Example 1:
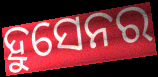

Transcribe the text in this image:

ହୁସେନର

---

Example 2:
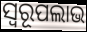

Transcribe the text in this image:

ସ୍ବରୂପଲାଭ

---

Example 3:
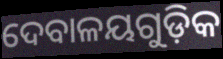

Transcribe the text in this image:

ଦେବାଳୟଗୁଡ଼ିକ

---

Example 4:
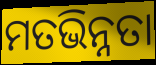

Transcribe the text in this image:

ମତଭିନ୍ନତା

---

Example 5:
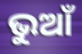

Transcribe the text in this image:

ଭୁଆଁ